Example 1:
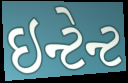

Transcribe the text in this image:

ઇન્ટેન્ટ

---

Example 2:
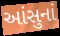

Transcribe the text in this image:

આંસુનાં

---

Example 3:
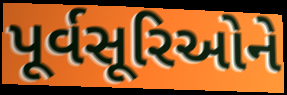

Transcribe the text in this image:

પૂર્વસૂરિઓને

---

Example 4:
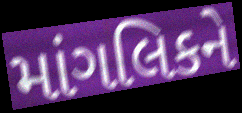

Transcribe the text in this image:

માંગલિકને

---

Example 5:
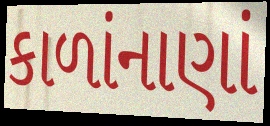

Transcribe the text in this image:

કાળાંનાણાં